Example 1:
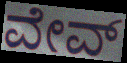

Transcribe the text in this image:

ವೇವ್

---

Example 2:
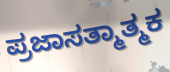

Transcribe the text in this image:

ಪ್ರಜಾಸತ್ಮಾತ್ಮಕ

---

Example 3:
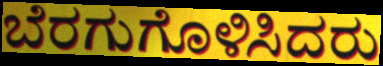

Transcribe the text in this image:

ಬೆರಗುಗೊಳಿಸಿದರು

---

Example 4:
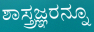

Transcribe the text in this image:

ಶಾಸ್ತ್ರಜ್ಞರನ್ನೂ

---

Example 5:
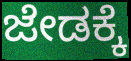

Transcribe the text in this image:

ಜೇಡಕ್ಕೆ